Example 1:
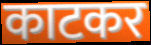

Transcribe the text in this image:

काटकर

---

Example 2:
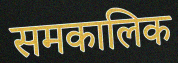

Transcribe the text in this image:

समकालिक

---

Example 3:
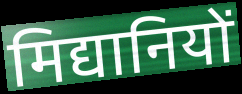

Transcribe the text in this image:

मिद्यानियों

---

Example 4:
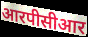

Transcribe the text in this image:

आरपीसीआर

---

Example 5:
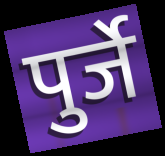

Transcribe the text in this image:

पुर्जे